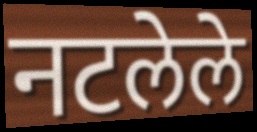
नटलेले